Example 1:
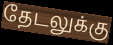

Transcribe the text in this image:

தேடலுக்கு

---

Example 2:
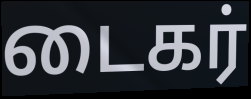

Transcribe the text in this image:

டைகர்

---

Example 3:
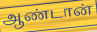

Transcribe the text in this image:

ஆண்டான்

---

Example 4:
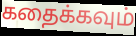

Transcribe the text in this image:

கதைக்கவும்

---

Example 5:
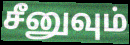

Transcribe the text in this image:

சீனுவும்